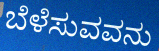
ಬೆಳೆಸುವವನು